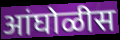
आंघोळीस